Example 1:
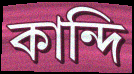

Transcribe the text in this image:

কান্দি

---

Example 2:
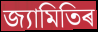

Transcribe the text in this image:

জ্যামিতিৰ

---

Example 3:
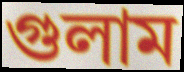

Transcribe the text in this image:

গুলাম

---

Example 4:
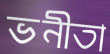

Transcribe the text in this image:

ভনীতা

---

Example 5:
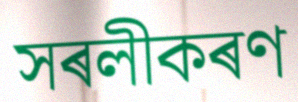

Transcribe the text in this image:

সৰলীকৰণ